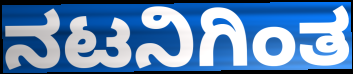
ನಟನಿಗಿಂತ